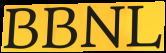
BBNL